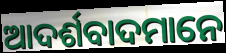
ଆଦର୍ଶବାଦମାନେ